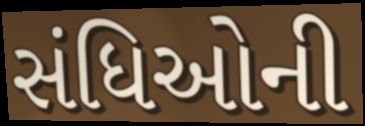
સંધિઓની